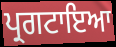
ਪ੍ਰਗਟਾਇਆ